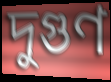
দুগুণ